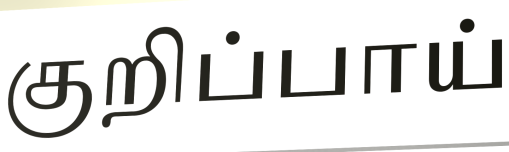
குறிப்பாய்